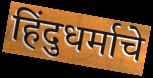
हिंदुधर्माचे